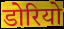
डोरियो